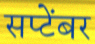
सप्टेंबर